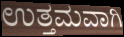
ಉತ್ತಮವಾಗಿ